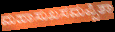
ಮಹಾಸುಖಸಮಪ್ಪಿತಾ